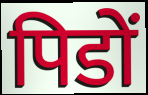
पिडों